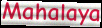
Mahalaya